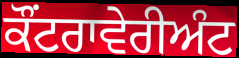
ਕੌਂਟਰਾਵੇਰੀਅੰਟ